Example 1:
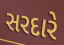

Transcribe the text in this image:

સરદારે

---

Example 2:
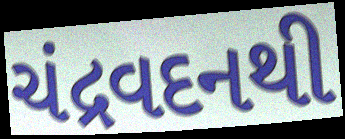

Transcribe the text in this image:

ચંદ્રવદનથી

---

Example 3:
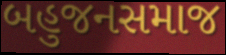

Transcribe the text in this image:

બહુજનસમાજ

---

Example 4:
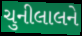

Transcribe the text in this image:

ચુનીલાલને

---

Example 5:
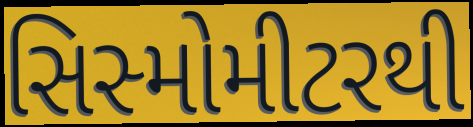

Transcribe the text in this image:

સિસ્મોમીટરથી